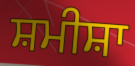
ਸ਼ਮੀਸ਼ਾ